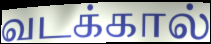
வடக்கால்